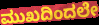
ಮುಖದಿಂದಲೇ